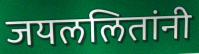
जयललितांनी